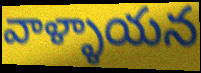
వాళ్ళాయన